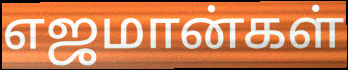
எஜமான்கள்